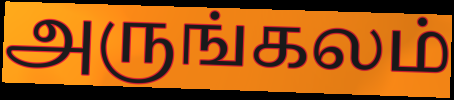
அருங்கலம்